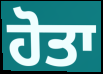
ਹੋਤਾ